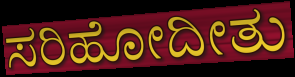
ಸರಿಹೋದೀತು